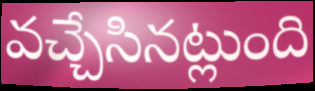
వచ్చేసినట్లుంది